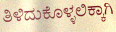
ತಿಳಿದುಕೊಳ್ಳಲಿಕ್ಕಾಗಿ